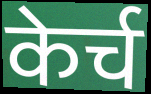
केर्च